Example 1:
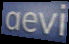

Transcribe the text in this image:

aevi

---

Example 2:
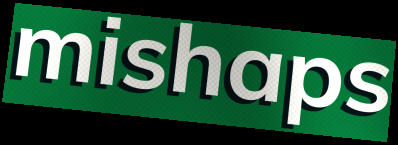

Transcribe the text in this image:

mishaps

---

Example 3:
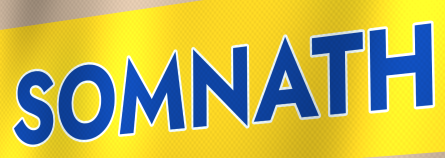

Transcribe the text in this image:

SOMNATH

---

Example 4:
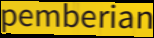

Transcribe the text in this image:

pemberian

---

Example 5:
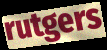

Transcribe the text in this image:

rutgers